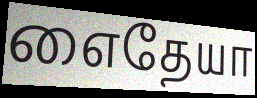
எைதேயா